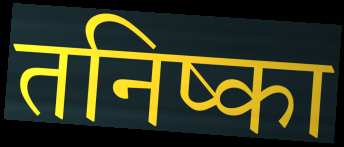
तनिष्का